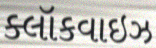
ક્લૉકવાઇઝ